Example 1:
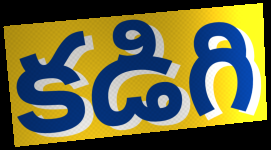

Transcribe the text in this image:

కడిగి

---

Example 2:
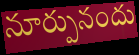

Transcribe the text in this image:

నూర్పునందు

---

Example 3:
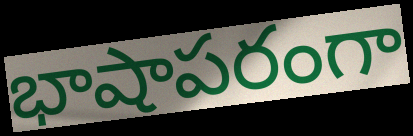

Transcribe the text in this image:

భాషాపరంగా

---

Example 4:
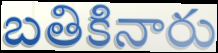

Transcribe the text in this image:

బతికినారు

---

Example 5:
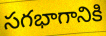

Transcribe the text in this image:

సగభాగానికి